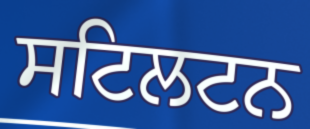
ਸਟਿਲਟਨ